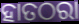
ହାତଠରା